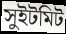
সুইটমিট